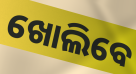
ଖୋଲିବେ